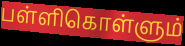
பள்ளிகொள்ளும்